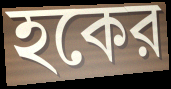
হকের